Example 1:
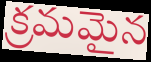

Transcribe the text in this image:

క్రమమైన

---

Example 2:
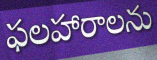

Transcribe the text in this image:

ఫలహారాలను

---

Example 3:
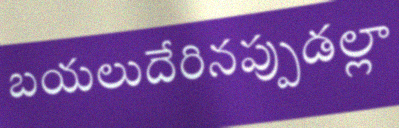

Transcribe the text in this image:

బయలుదేరినప్పుడల్లా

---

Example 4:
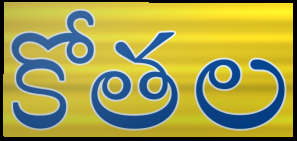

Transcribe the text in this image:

కోతల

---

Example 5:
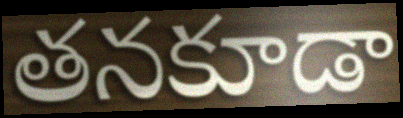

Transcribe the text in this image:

తనకూడా